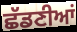
ਛੱਡਣੀਆਂ